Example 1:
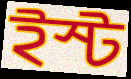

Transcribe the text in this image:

ইস্ট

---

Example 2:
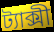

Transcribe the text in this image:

ট্যাক্সী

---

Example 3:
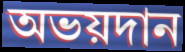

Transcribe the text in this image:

অভয়দান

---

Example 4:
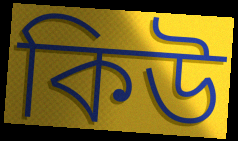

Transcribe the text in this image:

কিউ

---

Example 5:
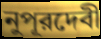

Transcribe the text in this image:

নুপূরদেবী